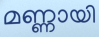
മണ്ണായി